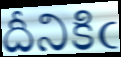
దీనికిఁ